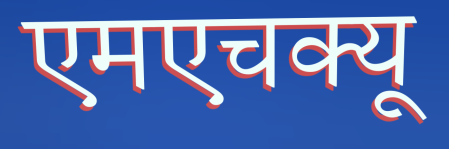
एमएचक्यू